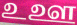
உஊ